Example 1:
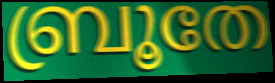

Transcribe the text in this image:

ബ്രൂതേ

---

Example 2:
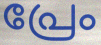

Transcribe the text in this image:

പ്രേം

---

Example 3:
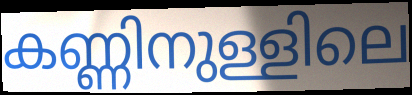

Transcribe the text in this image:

കണ്ണിനുള്ളിലെ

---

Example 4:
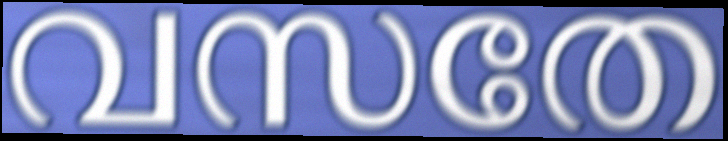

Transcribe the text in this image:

വസതേ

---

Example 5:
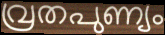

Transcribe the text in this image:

വ്രതപുണ്യം